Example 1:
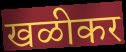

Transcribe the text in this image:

खळीकर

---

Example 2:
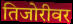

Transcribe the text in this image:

तिजोरीवर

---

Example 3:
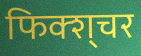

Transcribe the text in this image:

फिक्श्चर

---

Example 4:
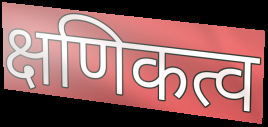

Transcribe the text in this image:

क्षणिकत्व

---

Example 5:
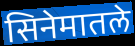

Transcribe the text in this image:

सिनेमातले